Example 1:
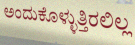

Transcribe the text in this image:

ಅಂದುಕೊಳ್ಳುತ್ತಿರಲಿಲ್ಲ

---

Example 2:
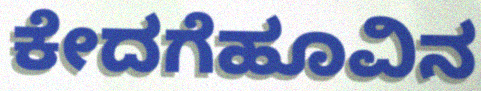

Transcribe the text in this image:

ಕೇದಗೆಹೂವಿನ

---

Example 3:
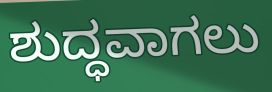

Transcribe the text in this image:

ಶುದ್ಧವಾಗಲು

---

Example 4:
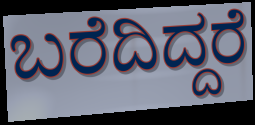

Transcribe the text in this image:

ಬರೆದಿದ್ದರೆ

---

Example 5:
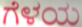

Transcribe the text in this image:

ಗೆಳಯ